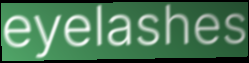
eyelashes